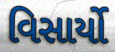
વિસાર્યો